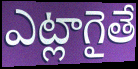
ఎట్లాగైతే